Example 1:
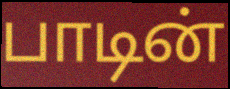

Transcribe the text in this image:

பாடின்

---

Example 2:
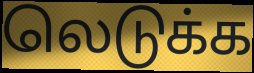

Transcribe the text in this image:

லெடுக்க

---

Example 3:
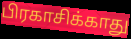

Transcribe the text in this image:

பிரகாசிக்காது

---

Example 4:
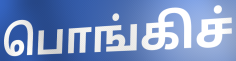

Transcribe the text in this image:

பொங்கிச்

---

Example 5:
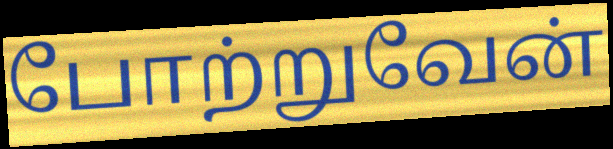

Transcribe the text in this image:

போற்றுவேன்